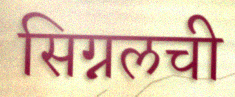
सिग्नलची